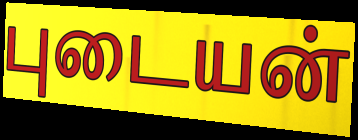
புடையன்